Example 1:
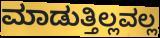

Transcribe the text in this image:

ಮಾಡುತ್ತಿಲ್ಲವಲ್ಲ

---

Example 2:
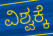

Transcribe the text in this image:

ವಿಶ್ವಕ್ಕೆ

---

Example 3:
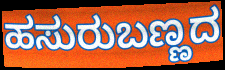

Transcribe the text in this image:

ಹಸುರುಬಣ್ಣದ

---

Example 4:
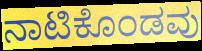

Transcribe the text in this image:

ನಾಟಿಕೊಂಡವು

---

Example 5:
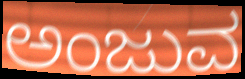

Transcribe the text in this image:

ಅಂಜುವ